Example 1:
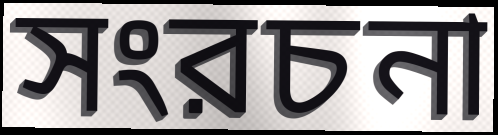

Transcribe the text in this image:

সংরচনা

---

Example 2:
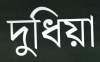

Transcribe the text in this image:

দুধিয়া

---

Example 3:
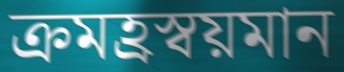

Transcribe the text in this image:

ক্রমহ্রস্বয়মান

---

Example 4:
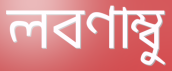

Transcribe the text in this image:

লবণাম্বু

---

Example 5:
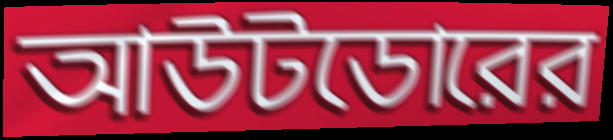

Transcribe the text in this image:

আউটডোরের